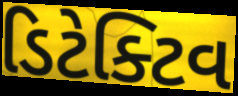
ડિટેક્ટિવ